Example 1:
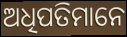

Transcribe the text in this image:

ଅଧିପତିମାନେ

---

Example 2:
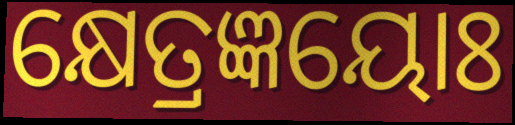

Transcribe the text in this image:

କ୍ଷେତ୍ରଜ୍ଞୟୋଃ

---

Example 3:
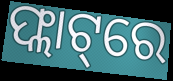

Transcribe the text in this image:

ଫ୍ଲାଟ୍‌ରେ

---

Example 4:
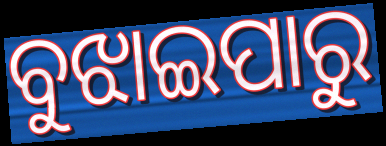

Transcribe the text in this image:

ବୁଝାଇପାରୁ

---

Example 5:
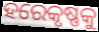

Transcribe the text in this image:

ହରେକୃଷ୍ଣକୁ